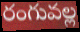
రంగువల్ల